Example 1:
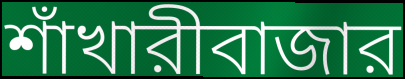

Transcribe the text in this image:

শাঁখারীবাজার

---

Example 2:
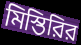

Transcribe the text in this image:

মিস্তিরির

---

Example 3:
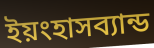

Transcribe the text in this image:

ইয়ংহাসব্যান্ড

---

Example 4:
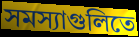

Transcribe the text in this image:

সমস্যাগুলিতে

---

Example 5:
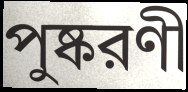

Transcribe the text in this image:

পুষ্করণী